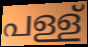
പള്ള്